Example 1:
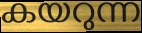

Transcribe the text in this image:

കയറുന്ന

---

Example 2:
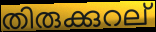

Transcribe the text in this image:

തിരുക്കുറല്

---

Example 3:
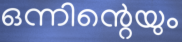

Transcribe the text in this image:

ഒന്നിന്റെയും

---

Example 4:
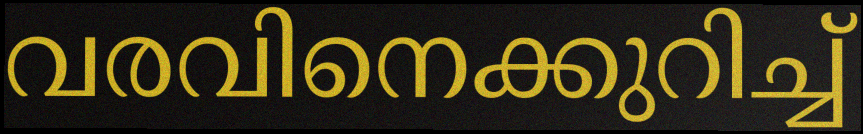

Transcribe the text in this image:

വരവിനെക്കുറിച്ച്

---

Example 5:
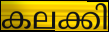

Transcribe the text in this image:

കലക്കി